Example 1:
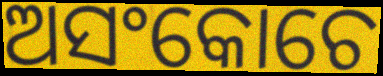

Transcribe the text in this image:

ଅସଂକୋଚେ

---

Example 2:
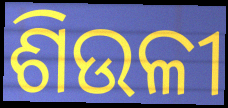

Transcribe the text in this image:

ଶିଉଳୀ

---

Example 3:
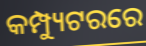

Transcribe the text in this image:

କମ୍ପ୍ୟୁଟରରେ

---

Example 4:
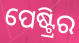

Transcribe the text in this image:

ପେଷ୍ଟ୍ରିର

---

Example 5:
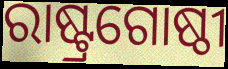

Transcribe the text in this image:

ରାଷ୍ଟ୍ରଗୋଷ୍ଠୀ